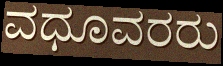
ವಧೂವರರು